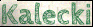
Kalecki